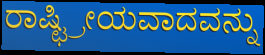
ರಾಷ್ಟ್ರೀಯವಾದವನ್ನು